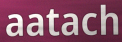
aatach